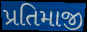
પ્રતિમાજી